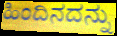
ಹಿಂದಿನದನ್ನು